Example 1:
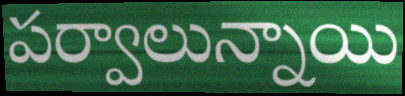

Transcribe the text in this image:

పర్వాలున్నాయి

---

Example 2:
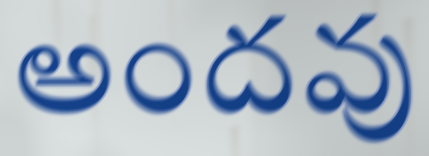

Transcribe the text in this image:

అందవు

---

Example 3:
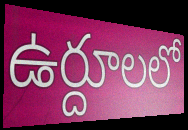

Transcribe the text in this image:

ఉర్దూలలో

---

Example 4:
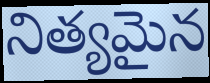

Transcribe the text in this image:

నిత్యమైన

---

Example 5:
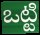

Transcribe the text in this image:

ఒట్టి